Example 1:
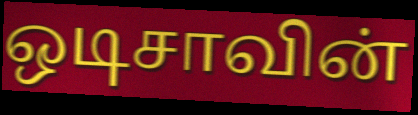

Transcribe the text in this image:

ஒடிசாவின்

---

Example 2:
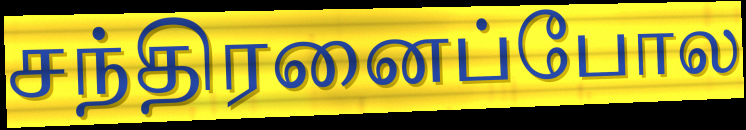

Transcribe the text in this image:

சந்திரனைப்போல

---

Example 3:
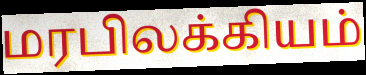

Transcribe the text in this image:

மரபிலக்கியம்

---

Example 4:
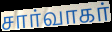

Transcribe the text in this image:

சார்வாகர்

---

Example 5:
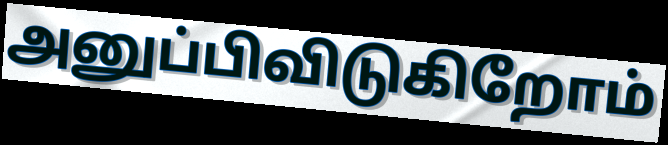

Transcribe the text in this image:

அனுப்பிவிடுகிறோம்